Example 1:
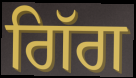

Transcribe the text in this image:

ਗਿੱਗ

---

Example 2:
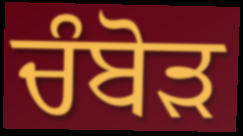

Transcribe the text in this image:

ਚੰਬੋੜ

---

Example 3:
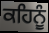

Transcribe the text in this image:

ਕਹਿਨੂੰ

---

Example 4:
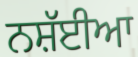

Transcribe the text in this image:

ਨਸ਼ੱਈਆ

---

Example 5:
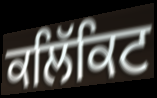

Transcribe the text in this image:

ਕਲਿੱਕਿਟ